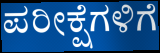
ಪರೀಕ್ಷೆಗಳಿಗೆ